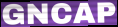
GNCAP